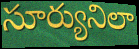
సూర్యునిలా